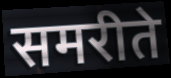
समरीते